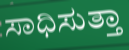
ಸಾಧಿಸುತ್ತಾ